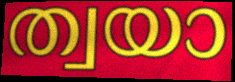
ത്വയാ